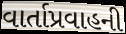
વાર્તાપ્રવાહની